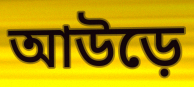
আউড়ে